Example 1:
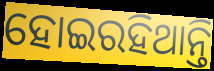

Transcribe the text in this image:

ହୋଇରହିଥାନ୍ତି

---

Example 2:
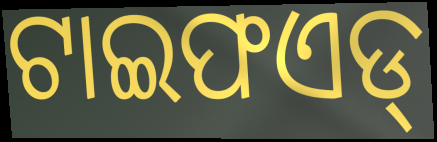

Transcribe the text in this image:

ଟାଇଫଏଡ୍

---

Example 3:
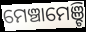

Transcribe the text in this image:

ମେଞ୍ଚାମେଞ୍ଚି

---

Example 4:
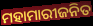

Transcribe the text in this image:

ମହାମାରୀଜନିତ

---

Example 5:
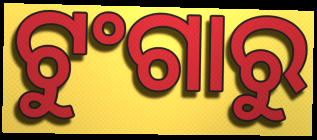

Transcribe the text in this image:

ଟୁଂଗାରୁ